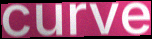
curve